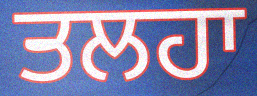
ਤਲਹਾ